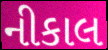
નીકાલ